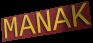
MANAK